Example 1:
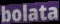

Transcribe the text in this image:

bolata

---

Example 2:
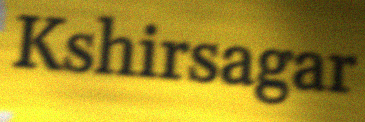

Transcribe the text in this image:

Kshirsagar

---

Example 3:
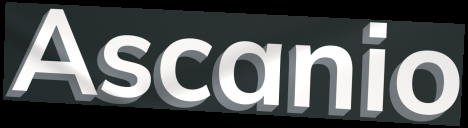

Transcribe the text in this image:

Ascanio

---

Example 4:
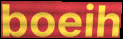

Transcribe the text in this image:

boeih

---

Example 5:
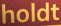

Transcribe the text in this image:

holdt